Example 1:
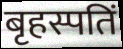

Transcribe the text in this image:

बृहस्पतिं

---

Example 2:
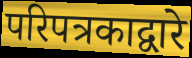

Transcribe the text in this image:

परिपत्रकाद्वारे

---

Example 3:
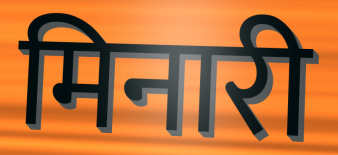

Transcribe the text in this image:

मिनारी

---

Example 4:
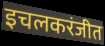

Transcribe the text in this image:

इचलकरंजीत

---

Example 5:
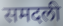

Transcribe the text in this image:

समदली